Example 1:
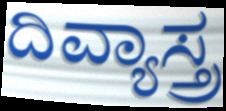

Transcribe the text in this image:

ದಿವ್ಯಾಸ್ತ್ರ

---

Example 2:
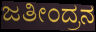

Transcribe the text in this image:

ಜತೀಂದ್ರನ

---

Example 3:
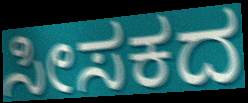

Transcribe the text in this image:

ಸೀಸಕದ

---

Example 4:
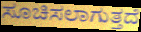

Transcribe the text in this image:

ಸೂಚಿಸಲಾಗುತ್ತದೆ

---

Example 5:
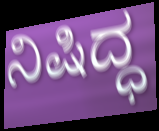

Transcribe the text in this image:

ನಿಷಿದ್ಧ